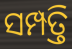
ସମ୍ପତ୍ତି